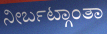
ನೀರ್ಬಟ್ಗಾಂತಾ